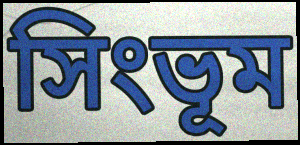
সিংভূম